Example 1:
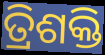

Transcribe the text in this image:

ତ୍ରିଶକ୍ତି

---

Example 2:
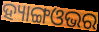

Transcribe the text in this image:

ହ୍ୟାଙ୍ଗଓଭର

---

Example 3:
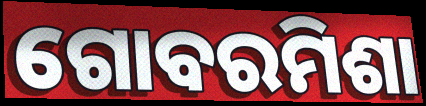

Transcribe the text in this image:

ଗୋବରମିଶା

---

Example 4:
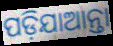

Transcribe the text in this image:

ପଡ଼ିଯାଆନ୍ତା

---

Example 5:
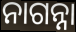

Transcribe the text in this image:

ନାଗନ୍ନା